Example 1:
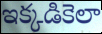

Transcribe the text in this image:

ఇక్కడికెలా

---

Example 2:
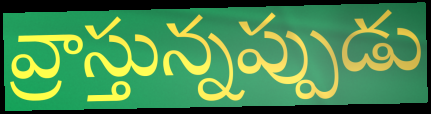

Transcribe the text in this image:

వ్రాస్తున్నప్పుడు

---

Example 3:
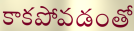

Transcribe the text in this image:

కాకపోవడంతో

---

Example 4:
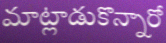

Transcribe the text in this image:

మాట్లాడుకొన్నారో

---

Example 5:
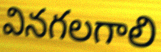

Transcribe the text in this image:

వినగలగాలి